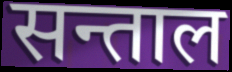
सन्ताल